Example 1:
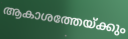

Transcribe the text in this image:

ആകാശത്തേയ്ക്കും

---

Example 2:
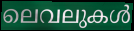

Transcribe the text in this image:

ലെവലുകൾ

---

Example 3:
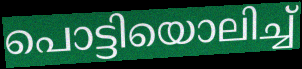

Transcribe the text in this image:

പൊട്ടിയൊലിച്ച്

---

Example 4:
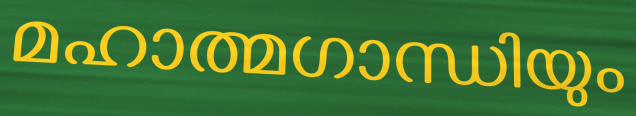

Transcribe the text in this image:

മഹാത്മഗാന്ധിയും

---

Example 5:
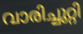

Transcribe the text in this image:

വാരിച്ചുറ്റി